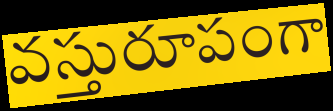
వస్తురూపంగా